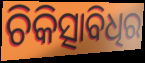
ଚିକିତ୍ସାବିଧିର